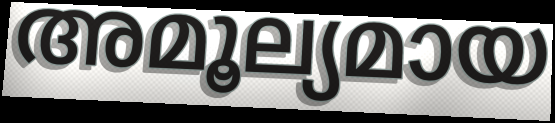
അമൂല്യമായ